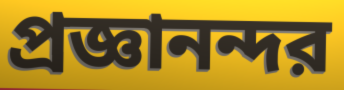
প্রজ্ঞানন্দর